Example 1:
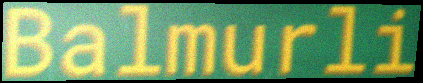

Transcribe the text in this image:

Balmurli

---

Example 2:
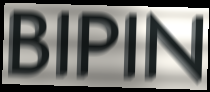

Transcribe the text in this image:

BIPIN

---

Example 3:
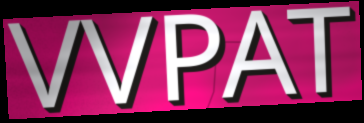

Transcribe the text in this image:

VVPAT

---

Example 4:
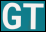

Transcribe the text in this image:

GT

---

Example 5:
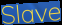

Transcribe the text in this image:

Slave